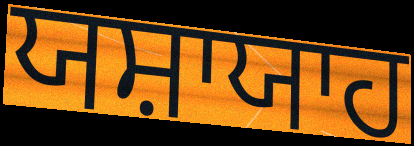
ਯਸ਼ਾਯਾਹ